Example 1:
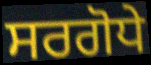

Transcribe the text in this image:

ਸਰਗੋਧੇ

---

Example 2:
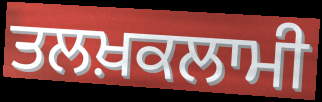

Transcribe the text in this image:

ਤਲਖ਼ਕਲਾਮੀ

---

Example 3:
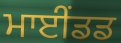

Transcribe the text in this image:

ਮਾਈਂਡਡ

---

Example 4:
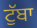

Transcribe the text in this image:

ਟੁੱਬਾ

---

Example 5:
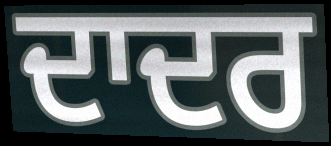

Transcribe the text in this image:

ਦਾਦਰ